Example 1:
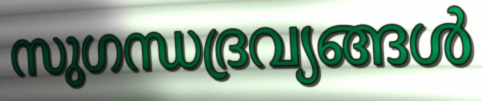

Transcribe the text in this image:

സുഗന്ധദ്രവ്യങ്ങൾ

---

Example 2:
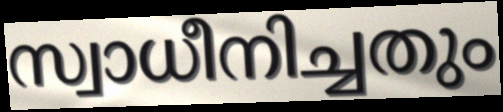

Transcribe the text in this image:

സ്വാധീനിച്ചതും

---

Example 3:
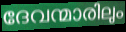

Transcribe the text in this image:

ദേവന്മാരിലും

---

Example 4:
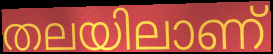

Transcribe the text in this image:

തലയിലാണ്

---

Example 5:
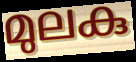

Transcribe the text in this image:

മുലകു